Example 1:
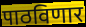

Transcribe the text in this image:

पाठविणार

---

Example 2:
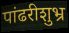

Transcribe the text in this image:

पांढरीशुभ्र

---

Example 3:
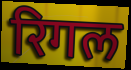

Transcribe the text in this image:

रिगल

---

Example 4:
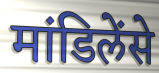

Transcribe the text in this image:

मांडिलेंसे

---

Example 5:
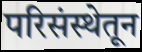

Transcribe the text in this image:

परिसंस्थेतून